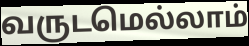
வருடமெல்லாம்